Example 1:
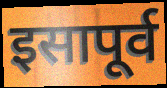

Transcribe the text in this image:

इसापूर्व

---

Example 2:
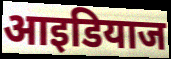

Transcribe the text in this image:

आइडियाज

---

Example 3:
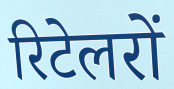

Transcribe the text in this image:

रिटेलरों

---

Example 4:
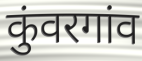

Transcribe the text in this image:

कुंवरगांव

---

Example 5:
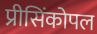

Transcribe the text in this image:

प्रीसिंकोपल